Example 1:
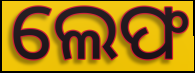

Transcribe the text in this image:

ଲେଫ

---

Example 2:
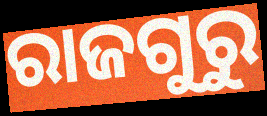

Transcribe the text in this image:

ରାଜଗୁରୁ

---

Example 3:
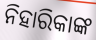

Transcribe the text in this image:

ନିହାରିକାଙ୍କ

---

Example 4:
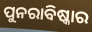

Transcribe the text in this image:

ପୁନରାବିଷ୍କାର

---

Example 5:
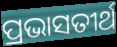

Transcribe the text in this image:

ପ୍ରଭାସତୀର୍ଥ